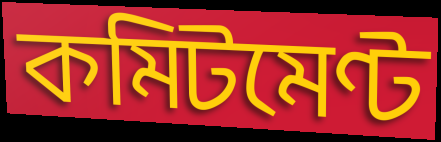
কমিটমেণ্ট